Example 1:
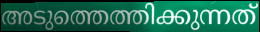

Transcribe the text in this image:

അടുത്തെത്തിക്കുന്നത്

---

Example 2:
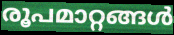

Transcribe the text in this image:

രൂപമാറ്റങ്ങൾ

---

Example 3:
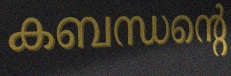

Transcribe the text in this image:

കബന്ധന്റെ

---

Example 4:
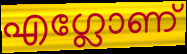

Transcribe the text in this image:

എഗ്ലോണ്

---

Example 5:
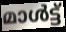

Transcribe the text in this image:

മാൾട്ട്